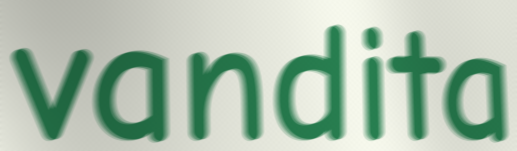
vandita